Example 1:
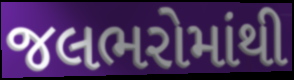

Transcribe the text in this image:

જલભરોમાંથી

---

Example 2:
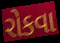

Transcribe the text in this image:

રોકવા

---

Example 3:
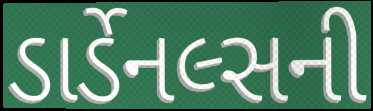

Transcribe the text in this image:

ડાર્ડેનલ્સની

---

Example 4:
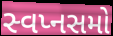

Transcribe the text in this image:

સ્વપ્નસમો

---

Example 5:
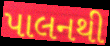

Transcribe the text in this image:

પાલનથી